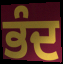
ਭੰਦ